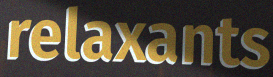
relaxants